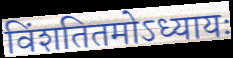
विंशतितमोऽध्यायः